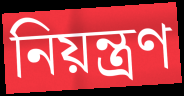
নিয়ন্ত্ৰণ